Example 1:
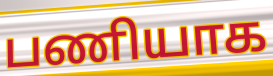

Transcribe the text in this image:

பணியாக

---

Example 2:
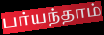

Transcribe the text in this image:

பர்யந்தாம்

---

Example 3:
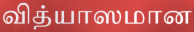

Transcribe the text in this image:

வித்யாஸமான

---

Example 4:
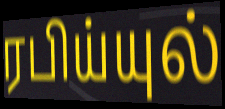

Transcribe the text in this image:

ரபிய்யுல்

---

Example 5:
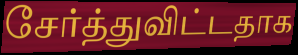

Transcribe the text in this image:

சேர்த்துவிட்டதாக